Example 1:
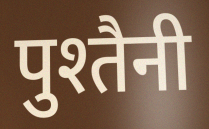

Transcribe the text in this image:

पुश्तैनी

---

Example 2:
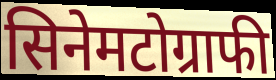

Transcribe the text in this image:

सिनेमटोग्राफी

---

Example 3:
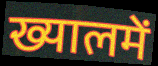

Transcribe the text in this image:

ख्यालमें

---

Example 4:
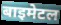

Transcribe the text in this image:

बाइमेटल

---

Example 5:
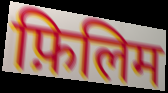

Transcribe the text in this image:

फ़िलिम